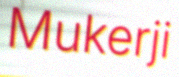
Mukerji